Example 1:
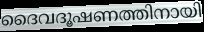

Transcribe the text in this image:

ദൈവദൂഷണത്തിനായി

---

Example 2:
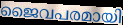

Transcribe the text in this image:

ജൈവപരമായി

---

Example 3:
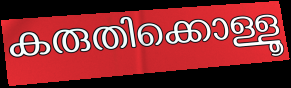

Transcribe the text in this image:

കരുതിക്കൊള്ളൂ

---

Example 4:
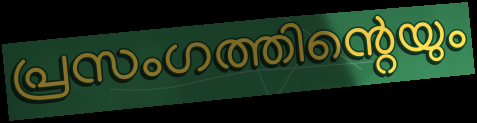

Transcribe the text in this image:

പ്രസംഗത്തിന്റെയും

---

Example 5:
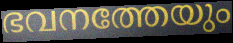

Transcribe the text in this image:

ഭവനത്തേയും